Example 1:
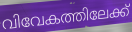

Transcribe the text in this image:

വിവേകത്തിലേക്ക്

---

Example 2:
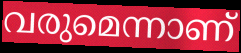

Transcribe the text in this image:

വരുമെന്നാണ്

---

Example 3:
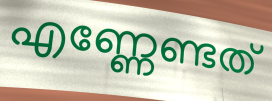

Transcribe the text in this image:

എണ്ണേണ്ടത്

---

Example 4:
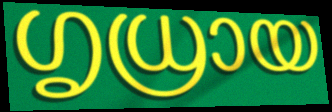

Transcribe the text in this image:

ഗൃധ്രായ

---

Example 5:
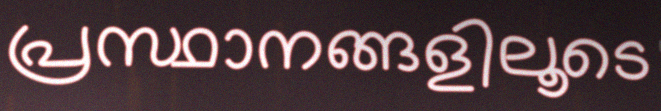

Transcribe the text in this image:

പ്രസ്ഥാനങ്ങളിലൂടെ